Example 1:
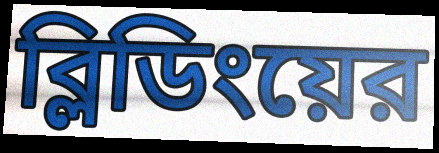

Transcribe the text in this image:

ব্লিডিংয়ের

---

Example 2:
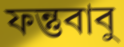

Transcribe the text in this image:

ফন্তুবাবু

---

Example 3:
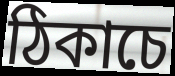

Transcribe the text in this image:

ঠিকাচে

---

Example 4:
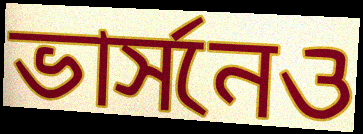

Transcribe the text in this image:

ভার্সনেও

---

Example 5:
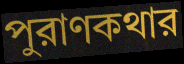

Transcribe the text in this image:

পুরাণকথার